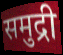
समुद्री